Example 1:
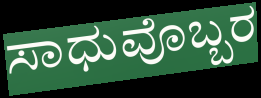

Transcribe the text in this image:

ಸಾಧುವೊಬ್ಬರ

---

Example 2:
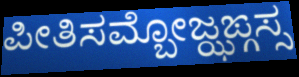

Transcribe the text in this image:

ಪೀತಿಸಮ್ಬೋಜ್ಝಙ್ಗಸ್ಸ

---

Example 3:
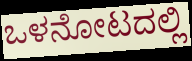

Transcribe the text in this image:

ಒಳನೋಟದಲ್ಲಿ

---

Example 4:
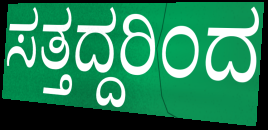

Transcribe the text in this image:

ಸತ್ತದ್ದರಿಂದ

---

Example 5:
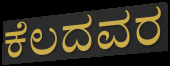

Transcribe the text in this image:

ಕೆಲದವರ